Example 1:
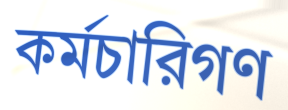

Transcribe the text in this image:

কর্মচারিগণ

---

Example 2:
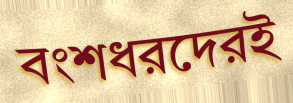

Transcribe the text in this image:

বংশধরদেরই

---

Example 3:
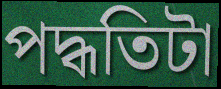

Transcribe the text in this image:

পদ্ধতিটা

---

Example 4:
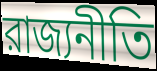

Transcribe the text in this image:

রাজ্যনীতি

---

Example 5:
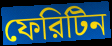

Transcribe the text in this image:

ফেরিটিন